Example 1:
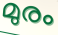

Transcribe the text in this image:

മുരം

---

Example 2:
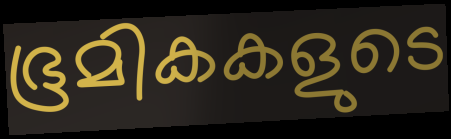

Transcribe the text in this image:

ഭൂമികകളുടെ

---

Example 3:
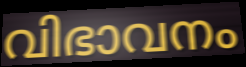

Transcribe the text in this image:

വിഭാവനം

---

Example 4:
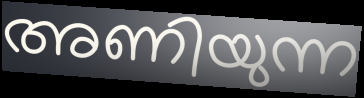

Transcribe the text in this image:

അണിയുന്ന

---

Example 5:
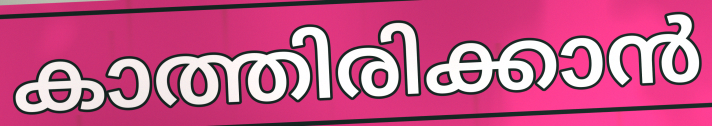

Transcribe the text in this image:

കാത്തിരിക്കാൻ